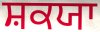
ਸ਼ਕਯਾ